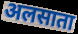
अलसाता